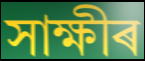
সাক্ষীৰ